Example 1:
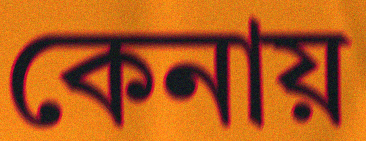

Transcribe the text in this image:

কেনায়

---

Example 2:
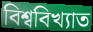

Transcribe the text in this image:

বিশ্ববিখ্যাত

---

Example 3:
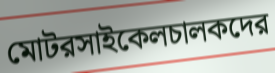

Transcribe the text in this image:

মোটরসাইকেলচালকদের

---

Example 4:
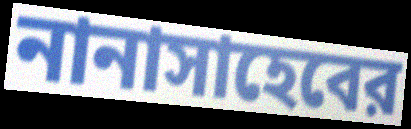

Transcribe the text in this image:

নানাসাহেবের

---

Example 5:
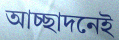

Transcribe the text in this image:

আচ্ছাদনেই